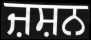
ਜ਼ਸ਼ਨ